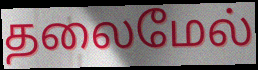
தலைமேல்